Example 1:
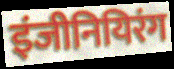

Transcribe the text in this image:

इंजीनियिरंग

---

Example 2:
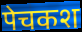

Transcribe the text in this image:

पेचकश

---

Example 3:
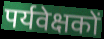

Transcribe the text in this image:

पर्यवेक्षकों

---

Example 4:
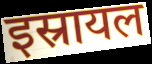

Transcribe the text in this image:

इस्रायल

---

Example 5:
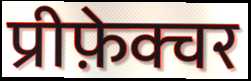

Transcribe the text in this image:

प्रीफ़ेक्चर